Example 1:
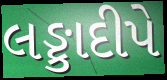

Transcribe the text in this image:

લઙ્કાદીપે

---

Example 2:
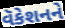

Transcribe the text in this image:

વૅકેશનને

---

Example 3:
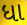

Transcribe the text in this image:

ધા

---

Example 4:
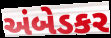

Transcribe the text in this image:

અંબેડકર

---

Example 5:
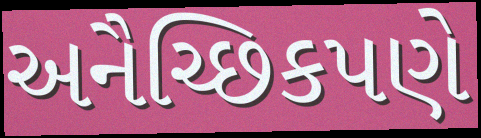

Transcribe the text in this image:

અનૈચ્છિકપણે